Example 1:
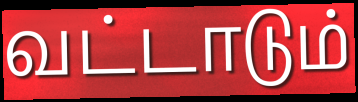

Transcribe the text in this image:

வட்டாடும்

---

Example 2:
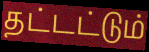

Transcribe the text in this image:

தட்டட்டும்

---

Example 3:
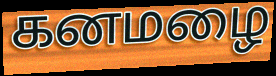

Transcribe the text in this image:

கனமழை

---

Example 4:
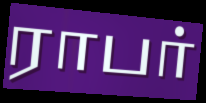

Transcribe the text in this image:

ராபர்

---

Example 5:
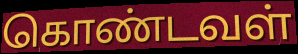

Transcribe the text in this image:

கொண்டவள்